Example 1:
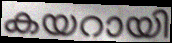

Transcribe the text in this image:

കയറായി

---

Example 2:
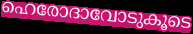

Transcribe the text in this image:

ഹെരോദാവോടുകൂടെ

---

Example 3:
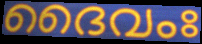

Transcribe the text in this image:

ദൈവംഃ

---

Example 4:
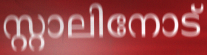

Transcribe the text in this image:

സ്റ്റാലിനോട്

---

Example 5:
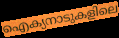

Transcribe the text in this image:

ഐക്യനാടുകളിലെ